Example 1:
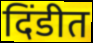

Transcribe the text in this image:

दिंडीत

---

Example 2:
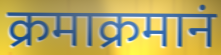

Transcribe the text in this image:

क्रमाक्रमानं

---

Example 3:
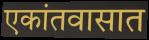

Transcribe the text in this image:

एकांतवासात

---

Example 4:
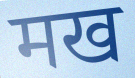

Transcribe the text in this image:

मख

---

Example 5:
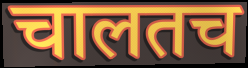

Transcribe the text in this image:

चालतच